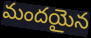
మందయైన